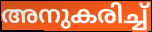
അനുകരിച്ച്